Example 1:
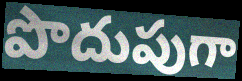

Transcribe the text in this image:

పొదుపుగా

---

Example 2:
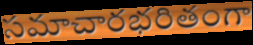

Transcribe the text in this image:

సమాచారభరితంగా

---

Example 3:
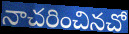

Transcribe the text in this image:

నాచరించినచో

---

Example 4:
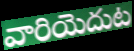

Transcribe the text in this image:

వారియెదుట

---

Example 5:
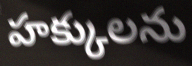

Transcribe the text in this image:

హక్కులను